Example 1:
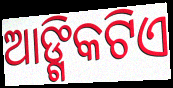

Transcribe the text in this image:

ଆଙ୍ଗିକଟିଏ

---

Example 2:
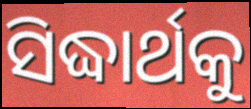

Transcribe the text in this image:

ସିଦ୍ଧାର୍ଥକୁ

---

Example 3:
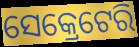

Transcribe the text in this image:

ସେକ୍ରେଟେରି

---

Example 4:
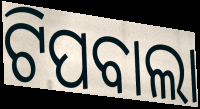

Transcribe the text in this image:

ଟିପବାଲା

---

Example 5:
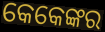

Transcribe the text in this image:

କେକେଙ୍କର